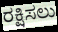
ರಕ್ಷಿಸಲು